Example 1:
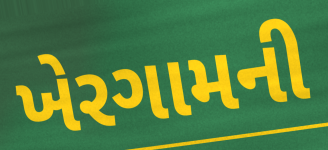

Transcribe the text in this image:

ખેરગામની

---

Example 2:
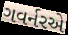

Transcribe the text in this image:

ગવર્નરએ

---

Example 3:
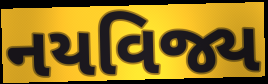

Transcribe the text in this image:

નયવિજ્ય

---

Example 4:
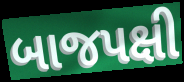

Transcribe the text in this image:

બાજપક્ષી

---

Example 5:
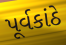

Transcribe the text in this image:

પૂર્વકાંઠે